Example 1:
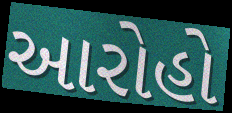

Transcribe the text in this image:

આરોહો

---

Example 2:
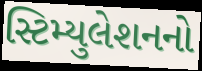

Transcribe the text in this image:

સ્ટિમ્યુલેશનનો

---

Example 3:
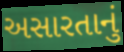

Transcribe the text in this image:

અસારતાનું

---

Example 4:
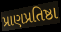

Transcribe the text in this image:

પ્રાણપ્રતિષ્ઠા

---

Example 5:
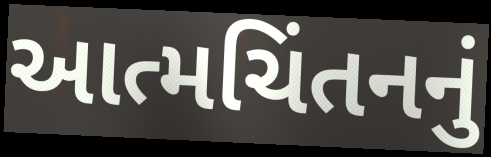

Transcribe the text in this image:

આત્મચિંતનનું